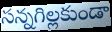
సన్నగిల్లకుండా